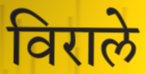
विराले